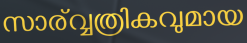
സാര്വ്വത്രികവുമായ